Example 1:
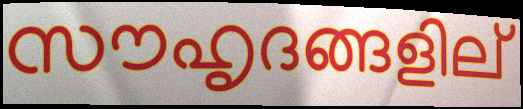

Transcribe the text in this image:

സൗഹൃദങ്ങളില്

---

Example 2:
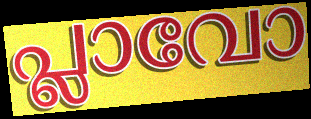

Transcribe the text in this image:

പ്ലാവോ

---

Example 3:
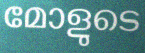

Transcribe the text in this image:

മോളുടെ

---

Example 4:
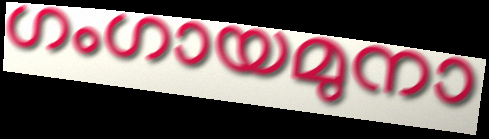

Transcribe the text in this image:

ഗംഗായമുനാ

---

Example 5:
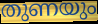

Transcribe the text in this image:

തുണയും